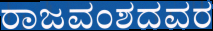
ರಾಜವಂಶದವರ